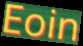
Eoin